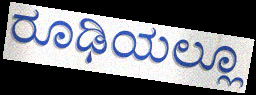
ರೂಢಿಯಲ್ಲೂ